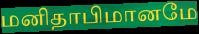
மனிதாபிமானமே